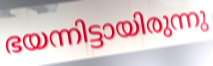
ഭയന്നിട്ടായിരുന്നു